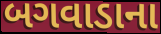
બગવાડાના